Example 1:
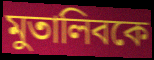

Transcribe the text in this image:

মুতালিবকে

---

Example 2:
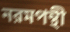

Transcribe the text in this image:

নরমপন্থী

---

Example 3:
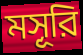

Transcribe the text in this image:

মসূরি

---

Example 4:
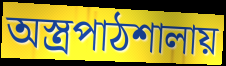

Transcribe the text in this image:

অস্ত্রপাঠশালায়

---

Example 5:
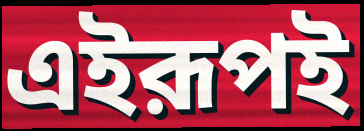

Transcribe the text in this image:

এইরূপই